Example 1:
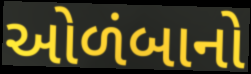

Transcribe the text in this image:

ઓળંબાનો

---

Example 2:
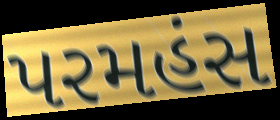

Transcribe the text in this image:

પરમહંસ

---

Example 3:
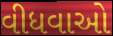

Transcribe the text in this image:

વીધવાઓ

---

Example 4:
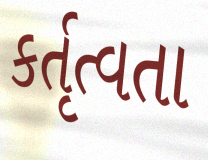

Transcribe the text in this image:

કર્તૃત્વતા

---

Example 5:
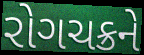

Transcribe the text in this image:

રોગચક્રને